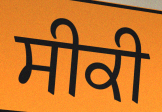
ਸੀਕੀ